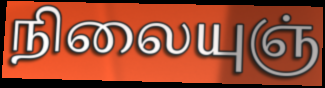
நிலையுஞ்